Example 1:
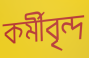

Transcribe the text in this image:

কর্মীবৃন্দ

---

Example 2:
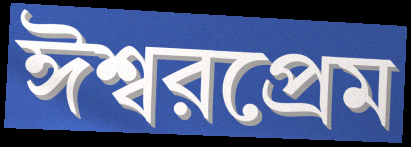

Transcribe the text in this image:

ঈশ্বরপ্রেম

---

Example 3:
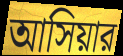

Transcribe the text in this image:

আসিয়ার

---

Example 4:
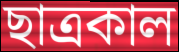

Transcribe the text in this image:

ছাত্রকাল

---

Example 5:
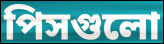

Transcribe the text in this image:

পিসগুলো